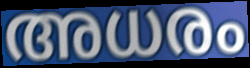
അധരം